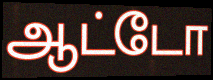
ஆட்டோ